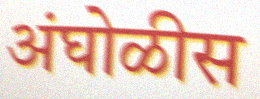
अंघोळीस